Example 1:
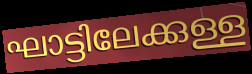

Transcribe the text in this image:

ഘാട്ടിലേക്കുള്ള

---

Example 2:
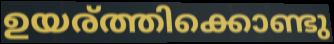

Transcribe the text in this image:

ഉയര്ത്തിക്കൊണ്ടു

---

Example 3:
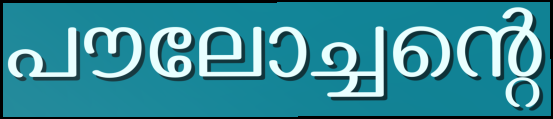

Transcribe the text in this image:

പൗലോച്ചന്റെ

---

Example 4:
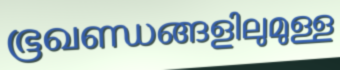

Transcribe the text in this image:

ഭൂഖണ്ഡങ്ങളിലുമുള്ള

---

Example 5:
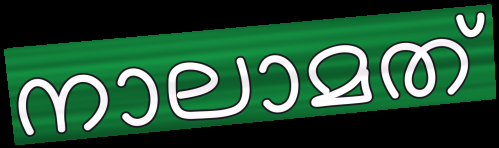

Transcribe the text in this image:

നാലാമത്